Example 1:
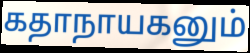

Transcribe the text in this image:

கதாநாயகனும்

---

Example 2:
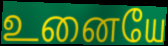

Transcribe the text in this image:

உனையே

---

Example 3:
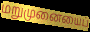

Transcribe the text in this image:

மறுமுனையைப்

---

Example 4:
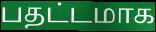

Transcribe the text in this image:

பதட்டமாக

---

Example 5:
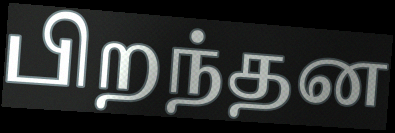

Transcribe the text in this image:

பிறந்தன